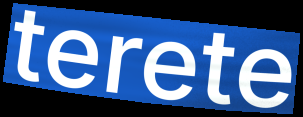
terete